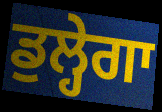
ਡੁਲ੍ਹੇਗਾ